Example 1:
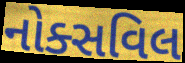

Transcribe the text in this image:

નોક્સવિલ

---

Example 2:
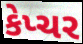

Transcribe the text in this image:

કેપ્ચર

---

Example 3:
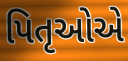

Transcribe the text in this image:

પિતૃઓએ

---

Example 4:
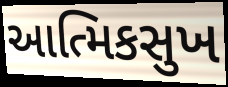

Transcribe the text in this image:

આત્મિકસુખ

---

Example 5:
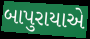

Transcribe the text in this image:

બાપુરાયાએ